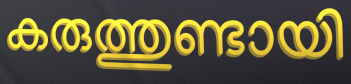
കരുത്തുണ്ടായി